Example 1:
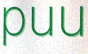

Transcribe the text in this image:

puu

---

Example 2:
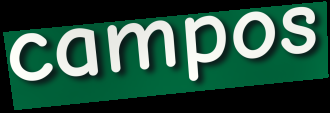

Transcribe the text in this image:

campos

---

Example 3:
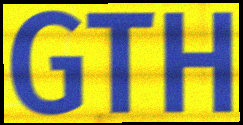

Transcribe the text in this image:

GTH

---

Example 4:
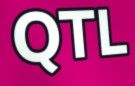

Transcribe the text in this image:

QTL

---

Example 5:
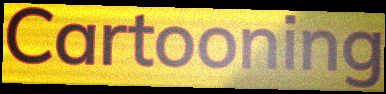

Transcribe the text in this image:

Cartooning